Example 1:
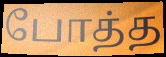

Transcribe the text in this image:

போத்த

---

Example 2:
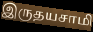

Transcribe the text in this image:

இருதயசாமி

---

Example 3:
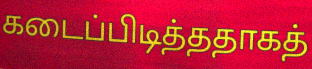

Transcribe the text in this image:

கடைப்பிடித்ததாகத்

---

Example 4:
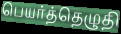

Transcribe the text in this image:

பெயர்த்தெழுதி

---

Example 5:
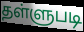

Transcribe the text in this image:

தள்ளுபடி